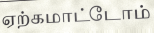
ஏற்கமாட்டோம்